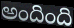
అందింది